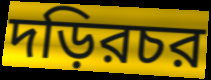
দড়িরচর